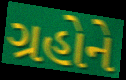
ગ્રહોને